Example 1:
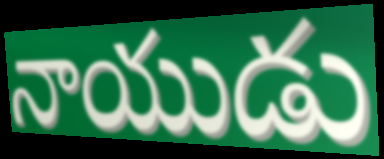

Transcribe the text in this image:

నాయుడు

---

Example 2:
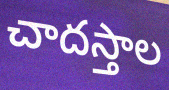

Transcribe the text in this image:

చాదస్తాల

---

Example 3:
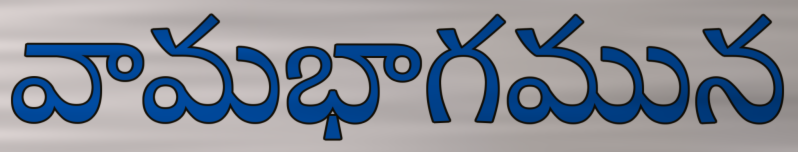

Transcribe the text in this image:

వామభాగమున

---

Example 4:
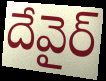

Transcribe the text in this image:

దేవైర్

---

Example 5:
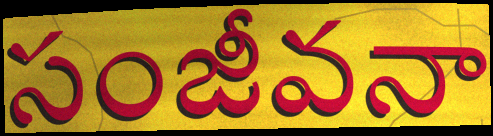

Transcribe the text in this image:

సంజీవనా